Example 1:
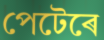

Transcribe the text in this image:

পেটেৰে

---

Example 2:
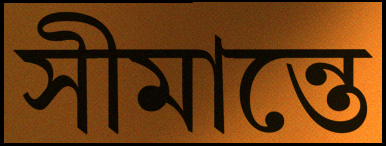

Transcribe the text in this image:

সীমান্তে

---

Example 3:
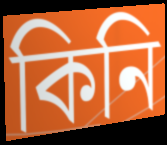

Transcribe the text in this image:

কিনি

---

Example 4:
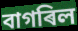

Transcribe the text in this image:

বাগৰিল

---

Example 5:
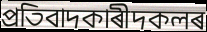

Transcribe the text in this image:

প্ৰতিবাদকাৰীদকলৰ